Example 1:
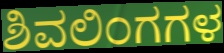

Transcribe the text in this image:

ಶಿವಲಿಂಗಗಳ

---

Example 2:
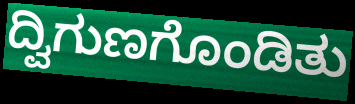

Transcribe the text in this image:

ದ್ವಿಗುಣಗೊಂಡಿತು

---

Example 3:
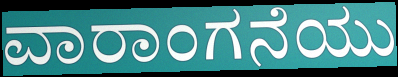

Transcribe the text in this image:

ವಾರಾಂಗನೆಯು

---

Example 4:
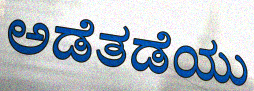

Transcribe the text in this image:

ಅಡೆತಡೆಯು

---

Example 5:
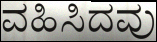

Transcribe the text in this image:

ವಹಿಸಿದವು